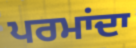
ਪਰਮਾਂਦਾ